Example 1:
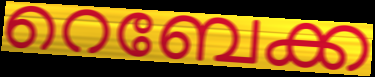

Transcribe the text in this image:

റെബേക്ക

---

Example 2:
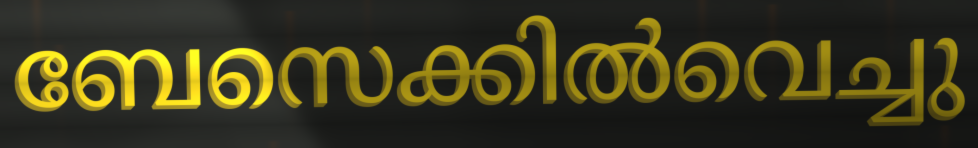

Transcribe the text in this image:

ബേസെക്കിൽവെച്ചു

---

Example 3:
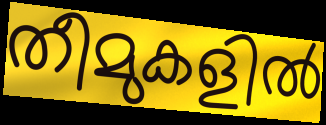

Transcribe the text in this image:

തീമുകളിൽ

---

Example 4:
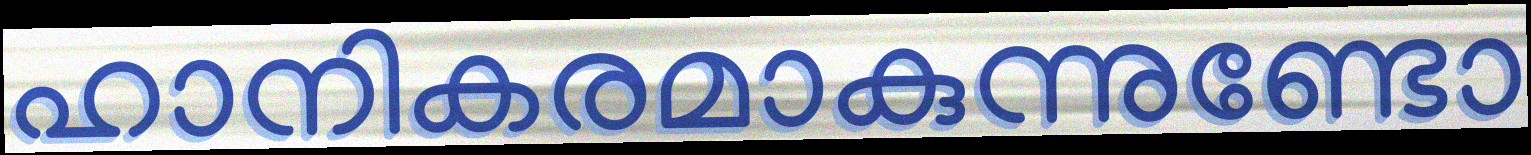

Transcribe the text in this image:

ഹാനികരമാകുന്നുണ്ടോ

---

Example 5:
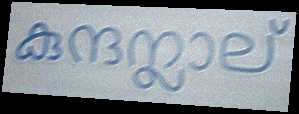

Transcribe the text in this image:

കുന്ദന്ലാല്